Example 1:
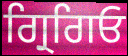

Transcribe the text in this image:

ਗ੍ਰਿਗਿਓ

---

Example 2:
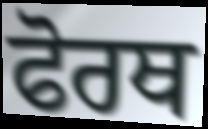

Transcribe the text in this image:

ਫੋਰਥ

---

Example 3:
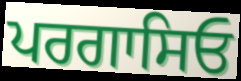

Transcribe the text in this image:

ਪਰਗਾਸਿਓ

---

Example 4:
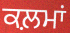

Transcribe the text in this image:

ਕਲ਼ਮਾਂ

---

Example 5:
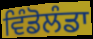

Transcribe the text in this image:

ਵਿੰਡੋਲੰਡਾ